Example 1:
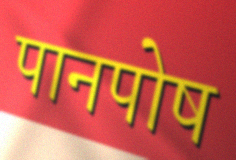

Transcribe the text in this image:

पानपोष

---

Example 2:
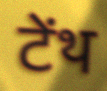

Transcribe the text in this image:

टेंथ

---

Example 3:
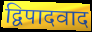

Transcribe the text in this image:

द्विपादवाद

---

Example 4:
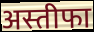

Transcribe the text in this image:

अस्तीफा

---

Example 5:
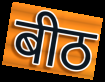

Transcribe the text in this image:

बीठ